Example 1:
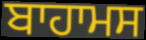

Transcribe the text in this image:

ਬਾਹਾਮਸ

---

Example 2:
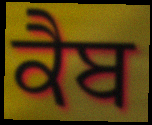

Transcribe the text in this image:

ਕੈਬ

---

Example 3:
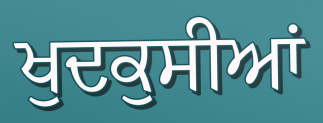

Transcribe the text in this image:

ਖੁਦਕੁਸੀਆਂ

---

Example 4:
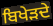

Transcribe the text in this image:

ਬਿਖੇੜਦੇ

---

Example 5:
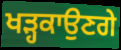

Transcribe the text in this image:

ਖੜ੍ਹਕਾਉਣਗੇ